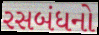
રસબંધનો